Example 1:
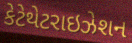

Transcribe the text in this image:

કેટેથેટરાઇઝેશન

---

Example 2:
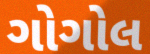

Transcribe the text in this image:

ગોગોલ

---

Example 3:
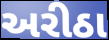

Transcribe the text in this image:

અરીઠા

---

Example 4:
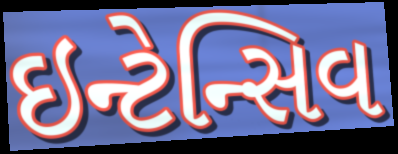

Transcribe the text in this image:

ઇન્ટેન્સિવ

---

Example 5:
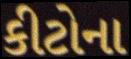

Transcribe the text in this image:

કીટોના